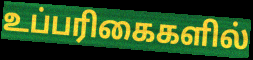
உப்பரிகைகளில்